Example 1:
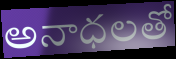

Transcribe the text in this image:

అనాధలతో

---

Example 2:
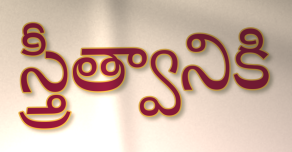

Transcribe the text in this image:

స్త్రీత్వానికి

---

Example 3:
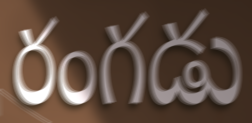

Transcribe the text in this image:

రంగడు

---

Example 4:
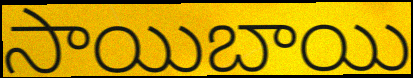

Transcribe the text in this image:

సాయిబాయి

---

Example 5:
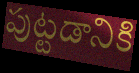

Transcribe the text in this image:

పుట్టడానికి